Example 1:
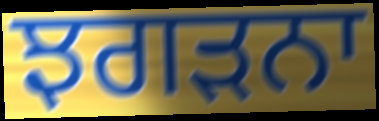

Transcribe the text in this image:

ਝਗੜਨਾ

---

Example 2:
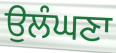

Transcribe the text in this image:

ਉਲੰਘਣਾ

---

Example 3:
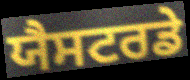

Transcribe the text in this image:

ਯੈਸਟਰਡੇ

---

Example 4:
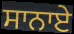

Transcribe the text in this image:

ਸਾਨਾਏ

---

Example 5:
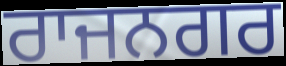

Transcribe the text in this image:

ਰਾਜਨਗਰ